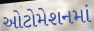
ઓટોમેશનમાં